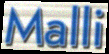
Malli